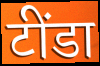
टींडा